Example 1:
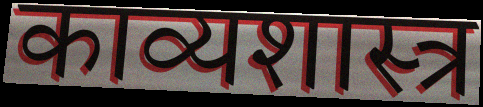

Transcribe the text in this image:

काव्यशास्त्र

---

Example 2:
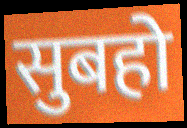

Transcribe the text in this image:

सुबहो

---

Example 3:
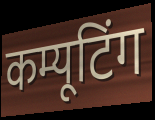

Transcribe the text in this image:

कम्यूटिंग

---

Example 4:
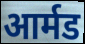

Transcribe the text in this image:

आर्मड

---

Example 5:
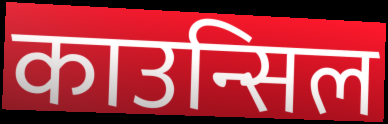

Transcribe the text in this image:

काउन्सिल